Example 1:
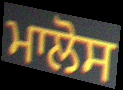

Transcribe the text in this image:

ਮਾਲੋਸ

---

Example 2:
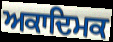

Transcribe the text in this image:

ਅਕਾਦਿਮਕ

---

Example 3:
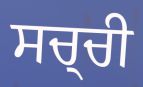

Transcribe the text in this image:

ਸਚ੍ਚੀ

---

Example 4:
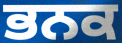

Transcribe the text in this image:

ਭਨਕ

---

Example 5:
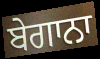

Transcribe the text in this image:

ਬੇਗਾਨਾ